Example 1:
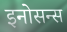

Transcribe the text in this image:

इनोसन्स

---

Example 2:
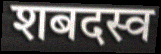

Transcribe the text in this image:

शबदस्व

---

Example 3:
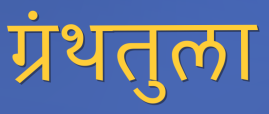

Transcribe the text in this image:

ग्रंथतुला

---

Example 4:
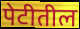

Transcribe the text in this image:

पेटीतील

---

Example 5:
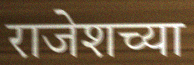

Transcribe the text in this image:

राजेशच्या